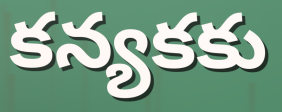
కన్యకకు